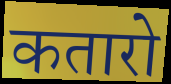
कतारो